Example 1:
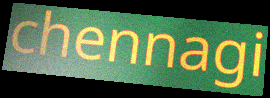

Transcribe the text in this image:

chennagi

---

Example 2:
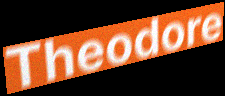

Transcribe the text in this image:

Theodore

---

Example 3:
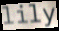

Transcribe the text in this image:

lily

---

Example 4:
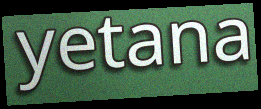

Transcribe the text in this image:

yetana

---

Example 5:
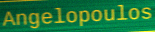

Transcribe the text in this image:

Angelopoulos